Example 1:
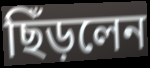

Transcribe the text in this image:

ছিঁড়লেন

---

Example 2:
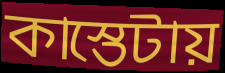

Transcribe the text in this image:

কাস্তেটায়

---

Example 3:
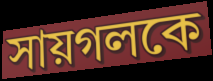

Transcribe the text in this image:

সায়গলকে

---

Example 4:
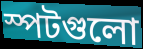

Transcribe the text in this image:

স্পটগুলো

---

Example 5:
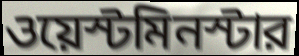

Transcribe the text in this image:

ওয়েস্টমিনস্টার